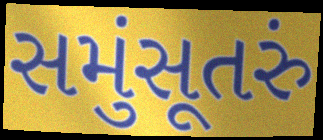
સમુંસૂતરું